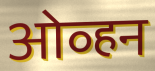
ओव्हन